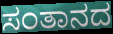
ಸಂತಾನದ